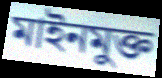
মাইনমুক্ত